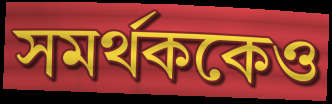
সমর্থককেও